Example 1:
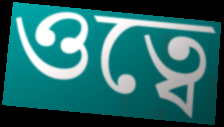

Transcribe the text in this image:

ওত্বে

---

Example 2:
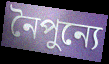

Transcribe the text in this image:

নৈপুন্যে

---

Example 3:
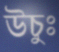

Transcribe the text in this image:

উচুঃ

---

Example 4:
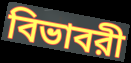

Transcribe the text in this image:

বিভাবরী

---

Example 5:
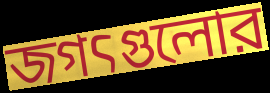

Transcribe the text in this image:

জগৎগুলোর